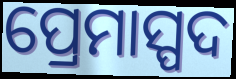
ପ୍ରେମାସ୍ପଦ